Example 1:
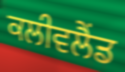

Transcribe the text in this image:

ਕਲੀਵਲੈਂਡ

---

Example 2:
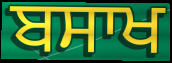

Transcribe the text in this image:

ਬਸਾਖ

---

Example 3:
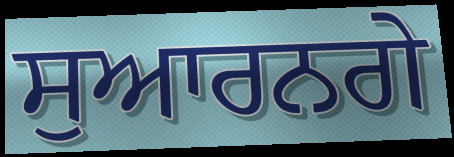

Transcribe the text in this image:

ਸੁਆਰਨਗੇ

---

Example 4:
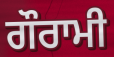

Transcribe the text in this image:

ਗੌਰਾਮੀ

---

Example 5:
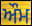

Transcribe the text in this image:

ਔਮ